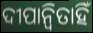
ଦୀପାନ୍ୱିତାହିଁ